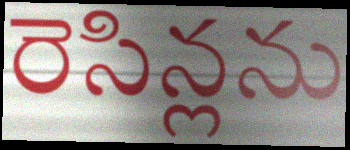
రెసిన్లను